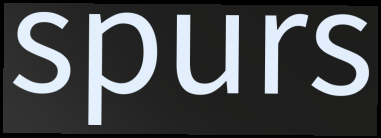
spurs